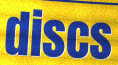
discs